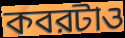
কবরটাও